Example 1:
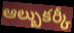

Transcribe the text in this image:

ఆల్బుకర్కీ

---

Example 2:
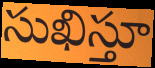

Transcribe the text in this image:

సుఖిస్తూ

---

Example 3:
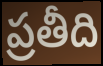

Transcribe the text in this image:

ప్రతీది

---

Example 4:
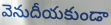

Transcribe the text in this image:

వెనుదీయకుండా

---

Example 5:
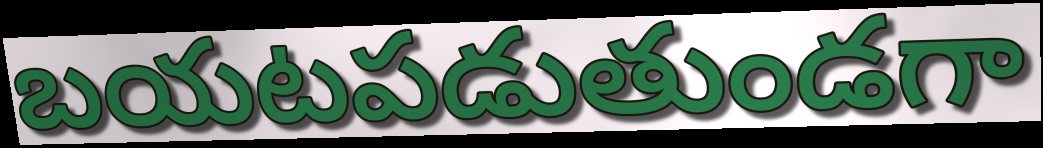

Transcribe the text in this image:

బయటపడుతుండగా